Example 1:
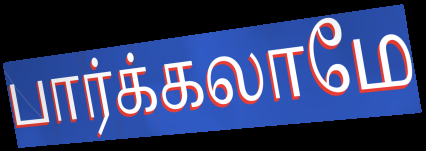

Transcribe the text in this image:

பார்க்கலாமே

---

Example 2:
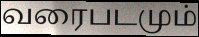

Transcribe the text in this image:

வரைபடமும்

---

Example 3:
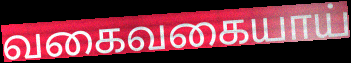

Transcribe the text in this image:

வகைவகையாய்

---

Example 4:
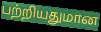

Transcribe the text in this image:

பற்றியதுமான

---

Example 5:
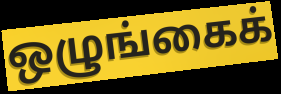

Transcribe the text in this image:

ஒழுங்கைக்